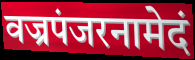
वज्रपंजरनामेदं